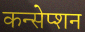
कन्सेप्शन